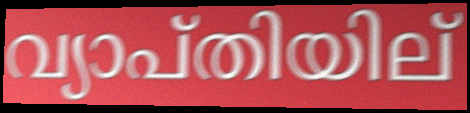
വ്യാപ്തിയില്